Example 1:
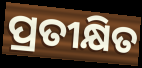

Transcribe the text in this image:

ପ୍ରତୀକ୍ଷିତ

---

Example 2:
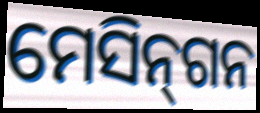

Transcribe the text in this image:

ମେସିନ୍‌ଗନ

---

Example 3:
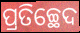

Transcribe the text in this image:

ପ୍ରତିଚ୍ଛେଦ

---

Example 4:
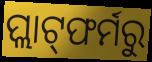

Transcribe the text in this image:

ପ୍ଲାଟ୍‌ଫର୍ମରୁ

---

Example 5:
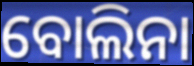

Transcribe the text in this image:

ବୋଲିନା